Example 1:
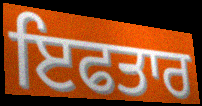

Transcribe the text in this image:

ਇਫਤਾਰ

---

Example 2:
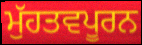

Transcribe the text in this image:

ਮੁੱਹਤਵਪੂਰਨ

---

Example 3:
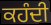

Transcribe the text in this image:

ਕਹੰਦੀ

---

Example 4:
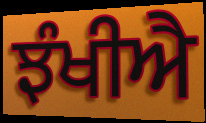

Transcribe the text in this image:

ਝੰਖੀਐ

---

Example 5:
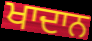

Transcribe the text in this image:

ਖਾਦਾਨ